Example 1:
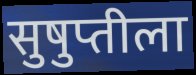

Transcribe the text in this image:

सुषुप्तीला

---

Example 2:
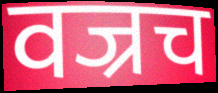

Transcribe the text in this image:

वज्रच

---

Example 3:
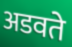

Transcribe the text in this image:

अडवते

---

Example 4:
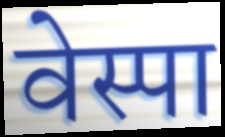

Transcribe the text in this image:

वेस्पा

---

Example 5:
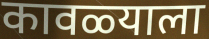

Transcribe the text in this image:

कावळ्याला